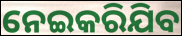
ନେଇକରିଯିବ